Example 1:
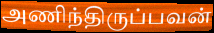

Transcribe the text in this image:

அணிந்திருப்பவன்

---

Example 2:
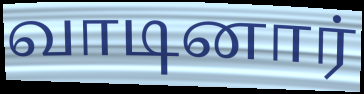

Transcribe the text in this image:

வாடினார்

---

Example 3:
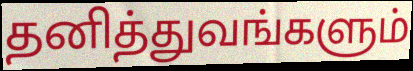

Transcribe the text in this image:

தனித்துவங்களும்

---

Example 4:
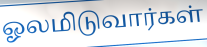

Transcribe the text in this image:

ஓலமிடுவார்கள்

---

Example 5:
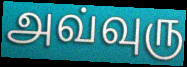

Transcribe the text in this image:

அவ்வுரு